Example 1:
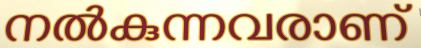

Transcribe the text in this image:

നൽകുന്നവരാണ്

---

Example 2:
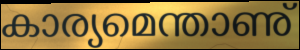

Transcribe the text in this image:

കാര്യമെന്താണു്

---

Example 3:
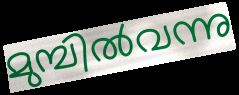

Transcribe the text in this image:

മുമ്പിൽവന്നു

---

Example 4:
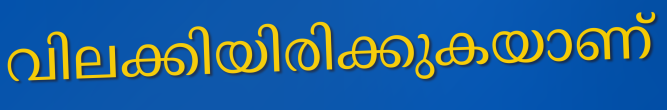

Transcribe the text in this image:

വിലക്കിയിരിക്കുകയാണ്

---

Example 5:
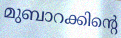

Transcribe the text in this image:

മുബാറക്കിന്റെ